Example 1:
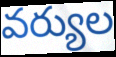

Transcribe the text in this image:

వర్యుల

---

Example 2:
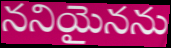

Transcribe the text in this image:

ననియైనను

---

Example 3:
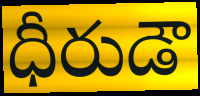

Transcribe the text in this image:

ధీరుడౌ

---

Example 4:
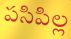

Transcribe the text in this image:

పసిపిల్ల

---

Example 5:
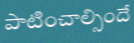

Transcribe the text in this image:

పాటించాల్సిందే